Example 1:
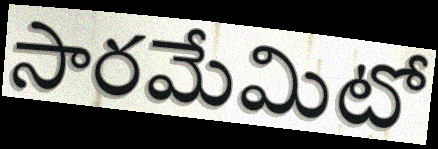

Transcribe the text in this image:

సారమేమిటో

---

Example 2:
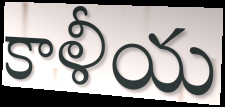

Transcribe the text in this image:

కాళీయ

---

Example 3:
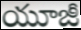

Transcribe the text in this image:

యూజీ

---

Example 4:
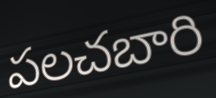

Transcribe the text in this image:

పలచబారి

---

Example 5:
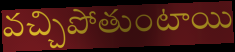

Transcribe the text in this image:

వచ్చిపోతుంటాయి